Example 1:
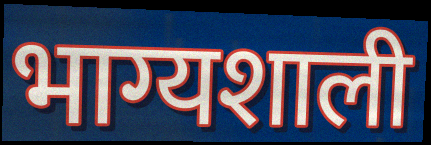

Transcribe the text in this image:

भाग्यशाली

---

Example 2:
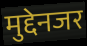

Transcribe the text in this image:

मुद्देनजर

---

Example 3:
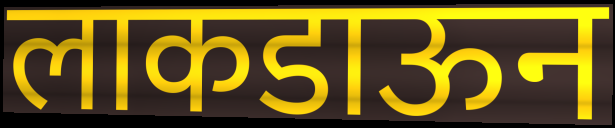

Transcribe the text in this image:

लाकडाऊन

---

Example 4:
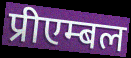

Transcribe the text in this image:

प्रीएम्बल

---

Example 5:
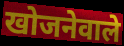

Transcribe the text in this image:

खोजनेवाले